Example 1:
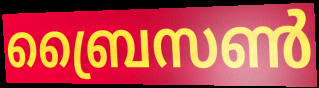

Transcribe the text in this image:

ബ്രൈസൺ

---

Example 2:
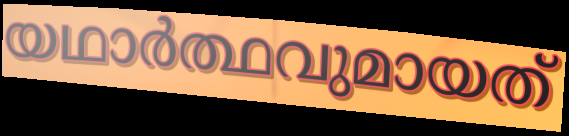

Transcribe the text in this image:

യഥാർത്ഥവുമായത്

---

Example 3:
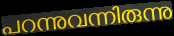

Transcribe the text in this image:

പറന്നുവന്നിരുന്നു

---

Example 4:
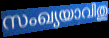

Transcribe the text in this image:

സംഖ്യയാവിതു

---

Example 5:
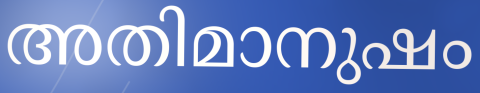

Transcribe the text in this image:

അതിമാനുഷം